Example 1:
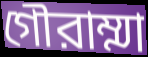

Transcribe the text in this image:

গৌরাম্মা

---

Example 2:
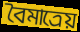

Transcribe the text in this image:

বৈমাত্রেয়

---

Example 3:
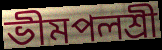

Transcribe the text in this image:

ভীমপলশ্রী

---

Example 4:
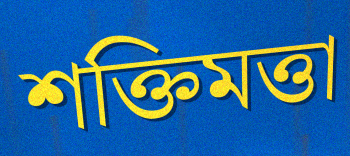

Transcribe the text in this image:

শক্তিমত্তা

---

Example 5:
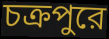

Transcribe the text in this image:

চক্রপুরে